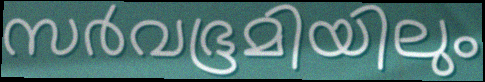
സർവഭൂമിയിലും